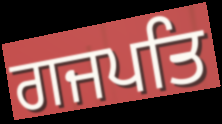
ਗਜਪਤਿ